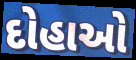
દોહાઓ